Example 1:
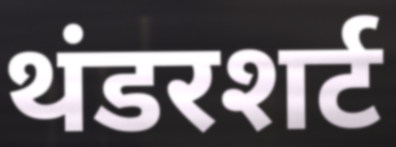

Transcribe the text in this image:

थंडरशर्ट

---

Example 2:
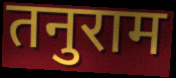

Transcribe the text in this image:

तनुराम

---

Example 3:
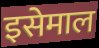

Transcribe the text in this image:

इसेमाल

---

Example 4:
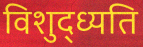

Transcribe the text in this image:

विशुद्ध्यति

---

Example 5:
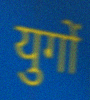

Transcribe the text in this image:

युगों